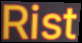
Rist